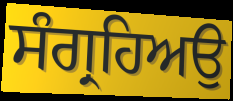
ਸੰਗ੍ਰਹਿਅਉ